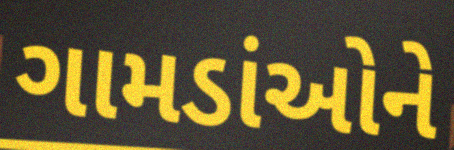
ગામડાંઓને